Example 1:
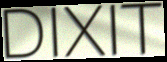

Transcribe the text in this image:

DIXIT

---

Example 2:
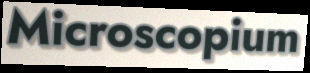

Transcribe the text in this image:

Microscopium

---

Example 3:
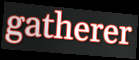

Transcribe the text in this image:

gatherer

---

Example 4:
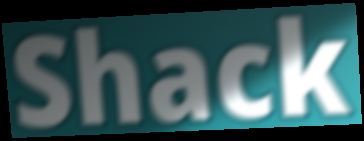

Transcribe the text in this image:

Shack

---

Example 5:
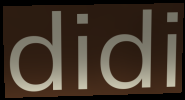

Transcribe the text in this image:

didi